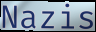
Nazis